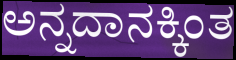
ಅನ್ನದಾನಕ್ಕಿಂತ